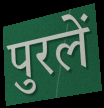
पुरलें